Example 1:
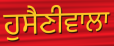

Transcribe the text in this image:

ਹੁਸੈਣੀਵਾਲਾ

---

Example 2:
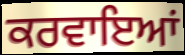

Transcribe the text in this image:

ਕਰਵਾਇਆਂ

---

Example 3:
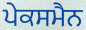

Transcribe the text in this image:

ਪੇਕਸਮੈਨ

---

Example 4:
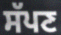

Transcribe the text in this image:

ਸੱਪਣ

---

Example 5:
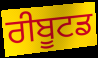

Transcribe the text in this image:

ਰੀਬੂਟਡ